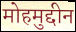
मोहमुद्दीन